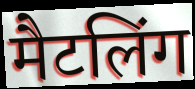
मैटलिंग